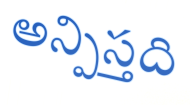
అన్పిస్తది